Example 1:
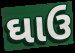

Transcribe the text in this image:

ઘાઉ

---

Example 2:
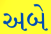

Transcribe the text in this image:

અબે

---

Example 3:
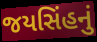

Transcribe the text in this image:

જયસિંહનું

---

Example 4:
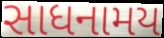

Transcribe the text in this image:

સાધનામય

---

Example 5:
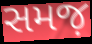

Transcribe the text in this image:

સમજ઼